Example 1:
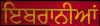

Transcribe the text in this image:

ਇਬਰਾਨੀਆਂ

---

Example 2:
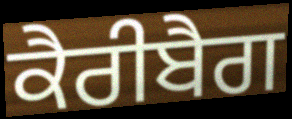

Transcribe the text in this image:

ਕੈਰੀਬੈਗ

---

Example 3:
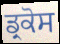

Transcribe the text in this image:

ਡ੍ਰਕੋਸ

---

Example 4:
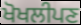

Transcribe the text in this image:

ਖੋਖਲੀਪਣ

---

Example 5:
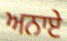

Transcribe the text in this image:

ਅਨਾਏ